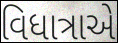
વિધાત્રાએ